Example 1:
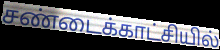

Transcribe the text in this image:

சண்டைக்காட்சியில்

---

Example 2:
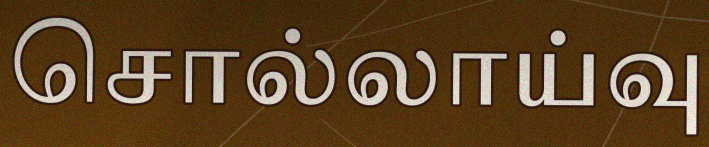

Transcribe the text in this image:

சொல்லாய்வு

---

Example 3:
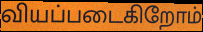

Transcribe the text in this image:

வியப்படைகிறோம்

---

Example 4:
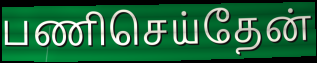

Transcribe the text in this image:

பணிசெய்தேன்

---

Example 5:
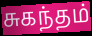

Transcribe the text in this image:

சுகந்தம்